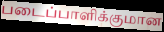
படைப்பாளிக்குமான